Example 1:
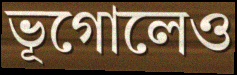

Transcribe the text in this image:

ভূগোলেও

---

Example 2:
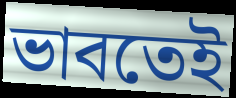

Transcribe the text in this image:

ভাবতেই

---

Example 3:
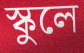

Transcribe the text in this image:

স্কুলে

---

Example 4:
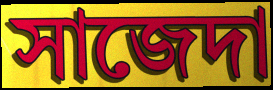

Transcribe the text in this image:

সাজেদা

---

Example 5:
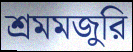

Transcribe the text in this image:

শ্রমমজুরি